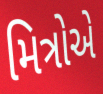
મિત્રોએ